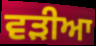
ਵੜੀਆ